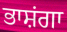
ਭਾਸ਼ਂਗਾ